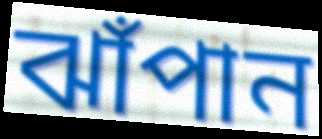
ঝাঁপান